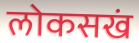
लोकसखं